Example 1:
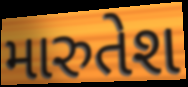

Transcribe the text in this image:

મારુતેશ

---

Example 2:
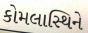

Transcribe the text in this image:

કોમલાસ્થિને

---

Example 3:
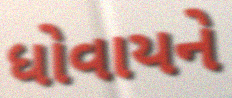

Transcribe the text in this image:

ધોવાયને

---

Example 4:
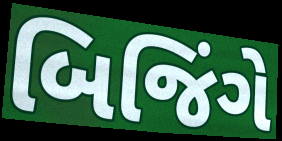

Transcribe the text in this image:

બિજિંગે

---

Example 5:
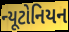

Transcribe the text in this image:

ન્યૂટોનિયન